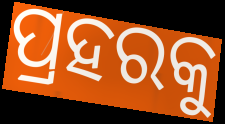
ପ୍ରହରକୁ